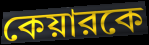
কেয়ারকে